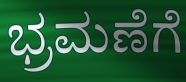
ಭ್ರಮಣೆಗೆ